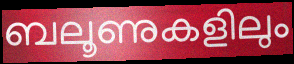
ബലൂണുകളിലും